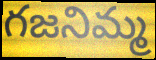
గజనిమ్మ